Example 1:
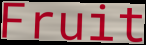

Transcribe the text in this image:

Fruit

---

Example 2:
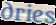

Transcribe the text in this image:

dries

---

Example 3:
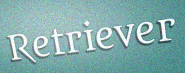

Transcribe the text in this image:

Retriever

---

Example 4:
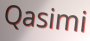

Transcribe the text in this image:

Qasimi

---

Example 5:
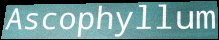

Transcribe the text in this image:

Ascophyllum